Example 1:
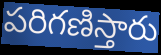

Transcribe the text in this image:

పరిగణిస్తారు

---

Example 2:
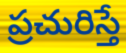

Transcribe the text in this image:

ప్రచురిస్తే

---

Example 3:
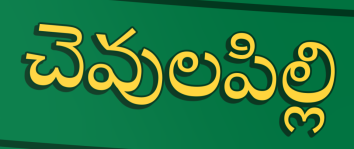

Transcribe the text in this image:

చెవులపిల్లి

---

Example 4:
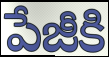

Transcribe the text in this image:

పేజీకి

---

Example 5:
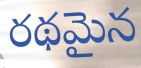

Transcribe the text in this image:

రథమైన